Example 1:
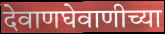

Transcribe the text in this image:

देवाणघेवाणीच्या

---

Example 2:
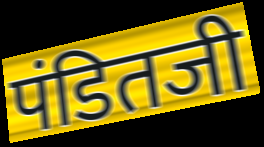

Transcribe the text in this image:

पंडितजी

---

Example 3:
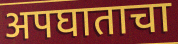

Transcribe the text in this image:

अपघाताचा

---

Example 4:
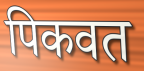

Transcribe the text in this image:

पिकवत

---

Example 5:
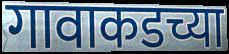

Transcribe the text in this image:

गावाकडच्या